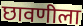
छावणीला